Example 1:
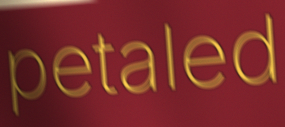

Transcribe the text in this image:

petaled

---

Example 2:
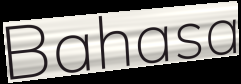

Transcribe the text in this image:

Bahasa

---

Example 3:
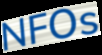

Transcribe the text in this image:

NFOs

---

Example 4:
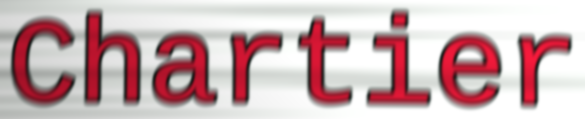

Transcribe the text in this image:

Chartier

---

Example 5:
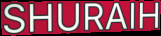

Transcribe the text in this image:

SHURAIH